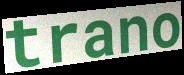
trano